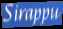
Sirappu